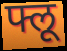
फ्लू